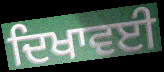
ਦਿਖਾਵਈ